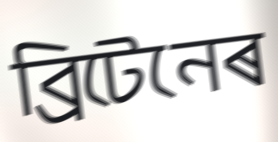
ব্ৰিটেনেৰ